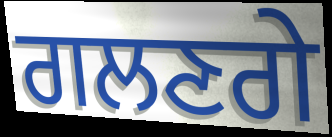
ਗਲਣਗੇ